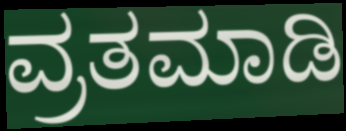
ವ್ರತಮಾಡಿ